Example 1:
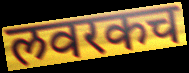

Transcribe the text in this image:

लवरकच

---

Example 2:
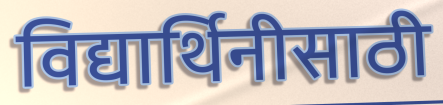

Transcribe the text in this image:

विद्यार्थिनीसाठी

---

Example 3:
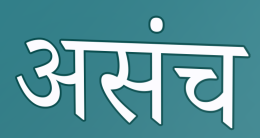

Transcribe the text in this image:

असंच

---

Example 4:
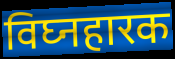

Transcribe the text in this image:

विघ्नहारक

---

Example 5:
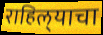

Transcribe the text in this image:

राहिल्याचा